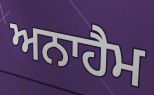
ਅਨਾਹੈਮ